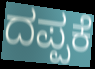
ದಪ್ಪಕೆ